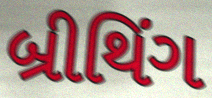
બ્રીથિંગ